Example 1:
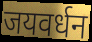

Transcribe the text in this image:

जयवर्धन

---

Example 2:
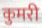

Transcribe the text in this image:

कुमरी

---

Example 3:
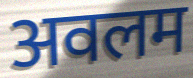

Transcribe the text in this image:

अवलम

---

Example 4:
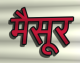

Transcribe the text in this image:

मैसूर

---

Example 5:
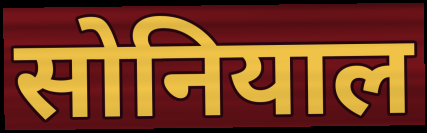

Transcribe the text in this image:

सोनियाल